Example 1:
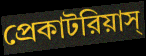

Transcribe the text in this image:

প্রেকাটরিয়াস্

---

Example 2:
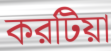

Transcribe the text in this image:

করটিয়া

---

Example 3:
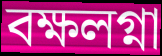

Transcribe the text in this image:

বক্ষলগ্না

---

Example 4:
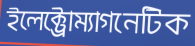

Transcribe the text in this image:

ইলেক্ট্রোম্যাগনেটিক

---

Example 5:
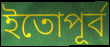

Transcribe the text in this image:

ইতোপূর্ব